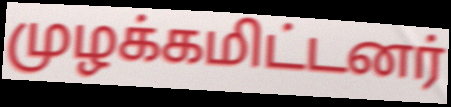
முழக்கமிட்டனர்